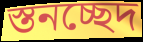
স্তনচ্ছেদ